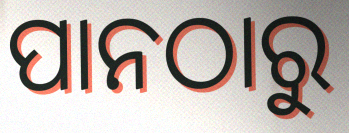
ପାନଠାରୁ